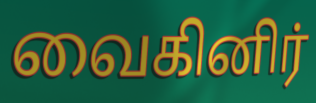
வைகினிர்